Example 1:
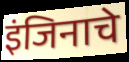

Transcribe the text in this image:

इंजिनाचे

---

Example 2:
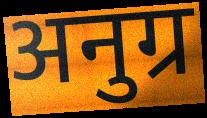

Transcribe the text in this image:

अनुग्र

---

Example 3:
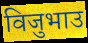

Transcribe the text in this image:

विजुभाउ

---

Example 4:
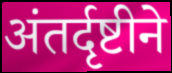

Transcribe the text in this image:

अंतर्दृष्टीने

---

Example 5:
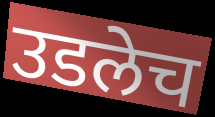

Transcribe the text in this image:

उडलेच